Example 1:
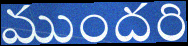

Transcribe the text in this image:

ముందరి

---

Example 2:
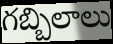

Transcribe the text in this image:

గబ్బిలాలు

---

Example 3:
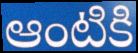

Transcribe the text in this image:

ఆంటికి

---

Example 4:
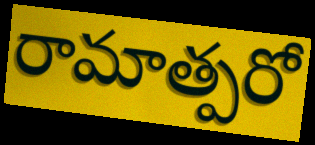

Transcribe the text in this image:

రామాత్పరో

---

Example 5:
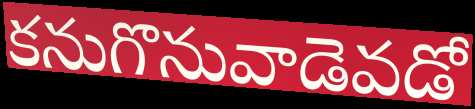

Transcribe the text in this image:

కనుగొనువాడెవడో